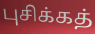
புசிக்கத்